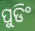
ପୁଡିଂ